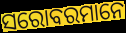
ସରୋବରମାନେ